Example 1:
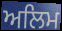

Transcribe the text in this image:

ਅਲਿਮ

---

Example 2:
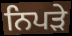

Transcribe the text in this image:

ਨਿਪੜੇ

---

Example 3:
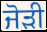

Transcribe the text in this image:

ਜੋਡ਼ੀ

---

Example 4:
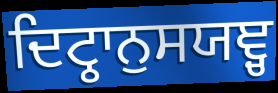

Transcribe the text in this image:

ਦਿਟ੍ਠਾਨੁਸਯਞ੍ਚ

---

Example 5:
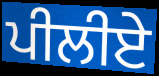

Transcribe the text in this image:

ਪੀਲੀਏ